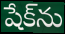
షేక్‌ను